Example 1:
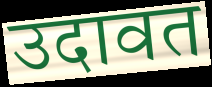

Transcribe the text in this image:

उदावत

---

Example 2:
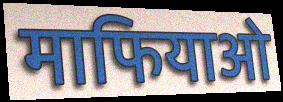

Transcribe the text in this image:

माफियाओ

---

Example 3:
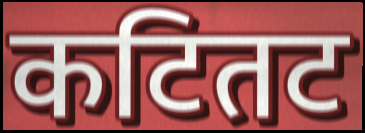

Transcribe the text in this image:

कटितट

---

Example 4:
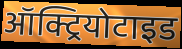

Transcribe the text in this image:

ऑक्ट्रियोटाइड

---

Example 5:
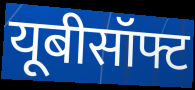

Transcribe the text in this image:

यूबीसॉफ्ट